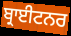
ਬ੍ਰਾਈਟਨਰ